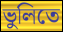
ভুলিতে